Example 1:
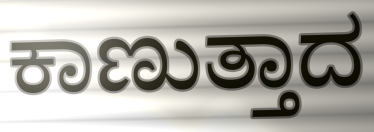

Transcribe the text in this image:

ಕಾಣುತ್ತಾದ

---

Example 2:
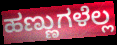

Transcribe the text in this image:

ಹಣ್ಣುಗಳೆಲ್ಲ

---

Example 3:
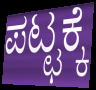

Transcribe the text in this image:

ಪಟ್ಟಕ್ಕೆ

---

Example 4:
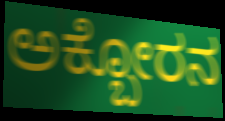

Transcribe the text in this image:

ಅಕ್ಬೋರನ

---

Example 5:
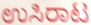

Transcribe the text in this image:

ಉಸಿರಾಟ